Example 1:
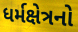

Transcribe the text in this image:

ધર્મક્ષેત્રનો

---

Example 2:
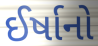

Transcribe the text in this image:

ઈર્ષાનો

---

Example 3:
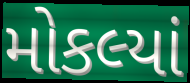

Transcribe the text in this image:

મોકલ્યાં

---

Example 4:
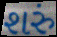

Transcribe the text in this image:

શરું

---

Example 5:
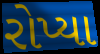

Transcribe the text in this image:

રોપ્યા